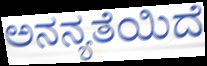
ಅನನ್ಯತೆಯಿದೆ